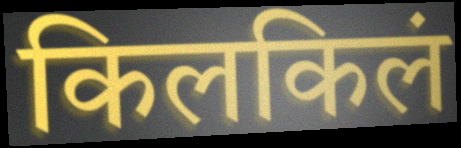
किलकिलं